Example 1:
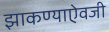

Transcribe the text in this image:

झाकण्याऐवजी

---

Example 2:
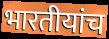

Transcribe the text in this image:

भारतीयांच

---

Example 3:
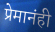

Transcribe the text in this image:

प्रेमानंही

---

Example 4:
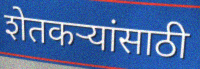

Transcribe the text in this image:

शेतकऱ्यांसाठी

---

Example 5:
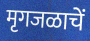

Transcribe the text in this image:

मृगजळाचें